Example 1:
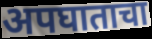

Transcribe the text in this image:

अपघाताचा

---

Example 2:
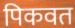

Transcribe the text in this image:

पिकवत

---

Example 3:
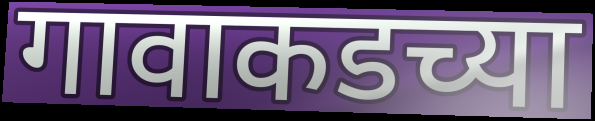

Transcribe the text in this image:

गावाकडच्या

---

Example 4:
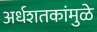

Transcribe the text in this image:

अर्धशतकांमुळे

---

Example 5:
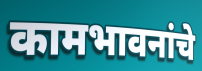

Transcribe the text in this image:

कामभावनांचे